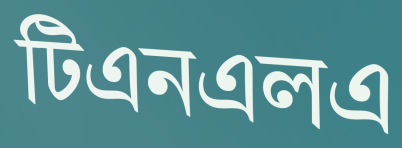
টিএনএলএ